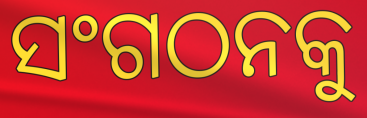
ସଂଗଠନକୁ